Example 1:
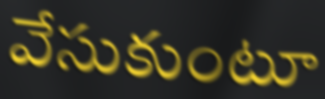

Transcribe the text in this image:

వేసుకుంటూ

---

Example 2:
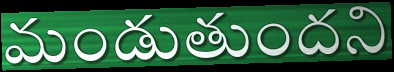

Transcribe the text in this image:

మండుతుందని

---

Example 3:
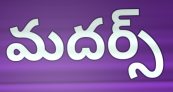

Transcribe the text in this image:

మదర్స్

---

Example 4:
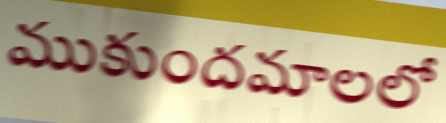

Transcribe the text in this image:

ముకుందమాలలో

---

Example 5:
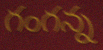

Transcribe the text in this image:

గంగన్న